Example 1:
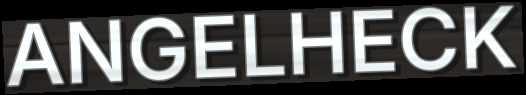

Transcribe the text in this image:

ANGELHECK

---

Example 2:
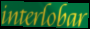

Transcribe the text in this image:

interlobar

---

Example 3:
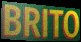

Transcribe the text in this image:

BRITO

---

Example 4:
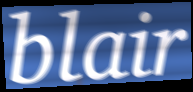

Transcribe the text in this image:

blair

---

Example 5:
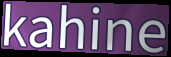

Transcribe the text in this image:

kahine